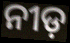
ନୀଡ଼